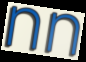
nn